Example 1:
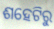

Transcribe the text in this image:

ଶହେଟିରୁ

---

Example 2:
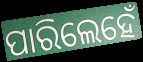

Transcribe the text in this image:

ପାରିଲେହେଁ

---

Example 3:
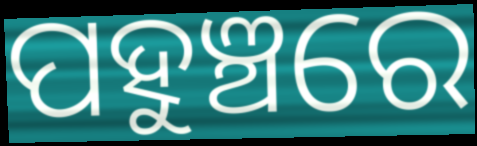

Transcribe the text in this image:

ପହୁଞ୍ଚରେ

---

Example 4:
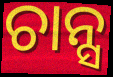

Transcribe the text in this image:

ଚାନ୍ସ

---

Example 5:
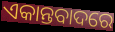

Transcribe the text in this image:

ଏକାନ୍ତବାଦରେ